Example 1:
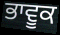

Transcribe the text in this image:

ਭਾਵੂਕ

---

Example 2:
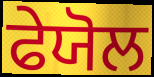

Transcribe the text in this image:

ਫੇਯੋਲ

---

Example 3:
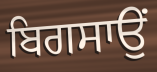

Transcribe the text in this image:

ਬਿਗਸਾਉਂ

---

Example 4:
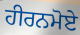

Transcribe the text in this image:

ਹੀਰਨਮੋਏ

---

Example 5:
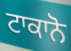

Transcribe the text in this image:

ਟਾਕਾਨੋ